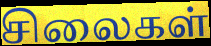
சிலைகள்